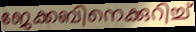
ജേക്കബിനെക്കുറിച്ച്